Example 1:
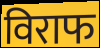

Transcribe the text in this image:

विराफ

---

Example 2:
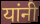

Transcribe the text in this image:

यांनी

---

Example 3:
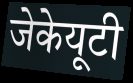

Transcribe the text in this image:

जेकेयूटी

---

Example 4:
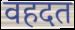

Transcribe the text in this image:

वहदत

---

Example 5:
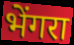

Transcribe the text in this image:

भेंगरा